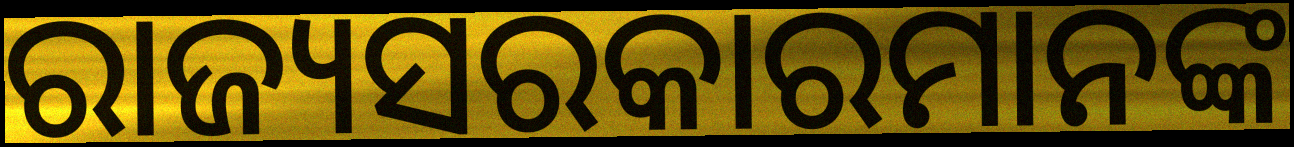
ରାଜ୍ୟସରକାରମାନଙ୍କ